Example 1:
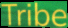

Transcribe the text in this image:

Tribe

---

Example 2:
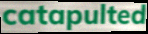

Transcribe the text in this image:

catapulted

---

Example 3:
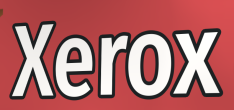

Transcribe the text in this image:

Xerox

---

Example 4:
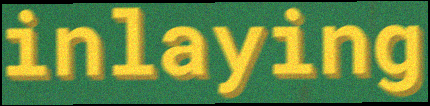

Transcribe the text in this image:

inlaying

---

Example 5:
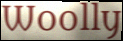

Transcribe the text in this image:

Woolly